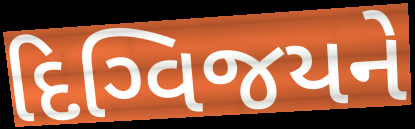
દિગ્વિજયને